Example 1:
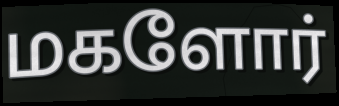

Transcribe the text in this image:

மகளோர்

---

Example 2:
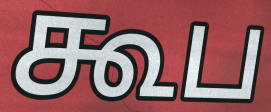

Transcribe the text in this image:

கூப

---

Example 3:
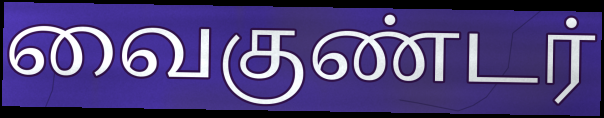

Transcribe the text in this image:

வைகுண்டர்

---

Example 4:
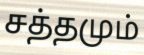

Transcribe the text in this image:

சத்தமும்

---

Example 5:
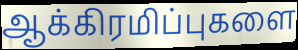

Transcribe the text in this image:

ஆக்கிரமிப்புகளை